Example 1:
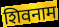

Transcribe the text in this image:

शिवनाम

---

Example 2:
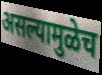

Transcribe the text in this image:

असल्यामुळेच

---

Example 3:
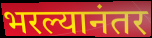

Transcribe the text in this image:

भरल्यानंतर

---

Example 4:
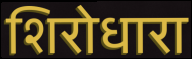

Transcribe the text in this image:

शिरोधारा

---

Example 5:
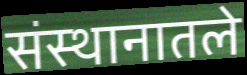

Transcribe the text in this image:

संस्थानातले